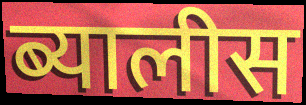
ब्यालीस